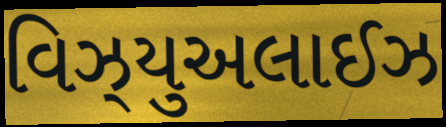
વિઝ્યુઅલાઈઝ